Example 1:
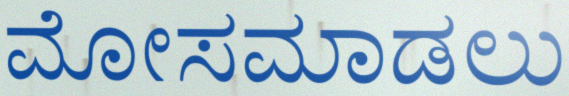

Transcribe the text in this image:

ಮೋಸಮಾಡಲು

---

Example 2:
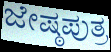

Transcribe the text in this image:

ಜೇಷ್ಠಪುತ್ರ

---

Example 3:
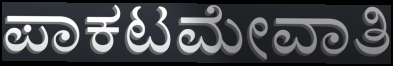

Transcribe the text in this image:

ಪಾಕಟಮೇವಾತಿ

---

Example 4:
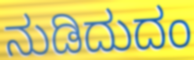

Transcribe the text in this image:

ನುಡಿದುದಂ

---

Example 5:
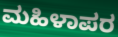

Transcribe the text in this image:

ಮಹಿಳಾಪರ